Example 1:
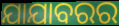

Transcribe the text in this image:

ଯାଯାବରର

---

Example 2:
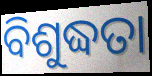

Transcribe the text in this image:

ବିଶୁଦ୍ଧତା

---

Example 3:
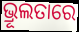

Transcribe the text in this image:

ଭ୍ରୂଲତାରେ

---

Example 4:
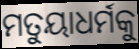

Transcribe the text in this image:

ମତୁୟାଧର୍ମକୁ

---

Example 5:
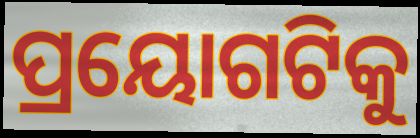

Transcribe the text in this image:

ପ୍ରୟୋଗଟିକୁ